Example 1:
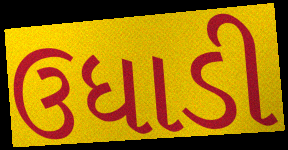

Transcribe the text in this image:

ઉધાડી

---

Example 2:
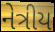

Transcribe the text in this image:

નેત્રીય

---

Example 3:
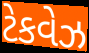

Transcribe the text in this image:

ટેકવેઝ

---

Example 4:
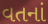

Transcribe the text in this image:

વતનાં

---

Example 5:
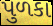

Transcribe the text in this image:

પુળકા